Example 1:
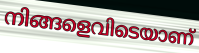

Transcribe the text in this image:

നിങ്ങളെവിടെയാണ്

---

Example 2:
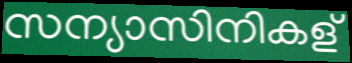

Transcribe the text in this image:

സന്യാസിനികള്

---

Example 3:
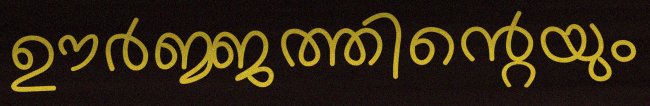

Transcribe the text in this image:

ഊർജ്ജത്തിന്റെയും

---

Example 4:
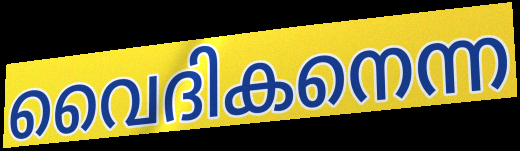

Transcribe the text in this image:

വൈദികനെന്ന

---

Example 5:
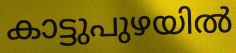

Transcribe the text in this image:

കാട്ടുപുഴയിൽ